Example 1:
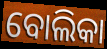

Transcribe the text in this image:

ବୋଲିକା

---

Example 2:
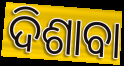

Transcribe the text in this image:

ଦିଶାବା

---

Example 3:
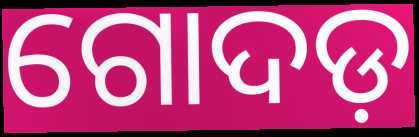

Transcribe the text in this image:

ଗୋଦଡ଼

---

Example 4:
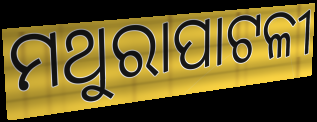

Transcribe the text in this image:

ମଥୁରାପାଟଳୀ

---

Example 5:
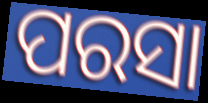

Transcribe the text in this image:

ପରସା